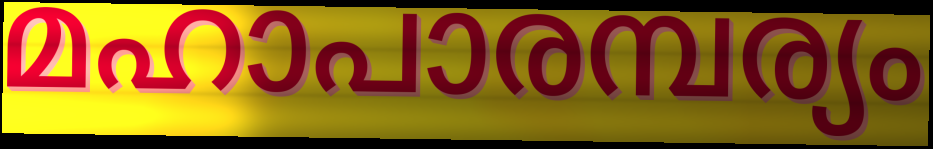
മഹാപാരമ്പര്യം